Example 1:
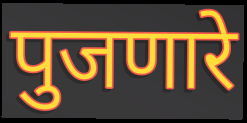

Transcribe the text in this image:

पुजणारे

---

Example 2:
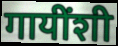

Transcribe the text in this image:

गायींशी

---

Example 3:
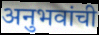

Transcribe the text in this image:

अनुभवांची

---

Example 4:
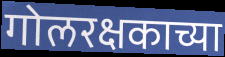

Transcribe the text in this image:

गोलरक्षकाच्या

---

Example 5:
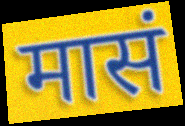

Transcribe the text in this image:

मासं